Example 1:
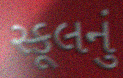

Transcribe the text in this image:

સ્કૂલનું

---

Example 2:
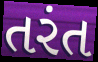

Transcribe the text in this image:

તરંત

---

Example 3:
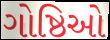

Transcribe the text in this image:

ગોષ્ઠિઓ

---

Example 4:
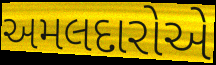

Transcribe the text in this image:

અમલદારોએ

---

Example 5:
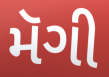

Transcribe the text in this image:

મૅગી